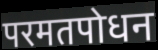
परमतपोधन